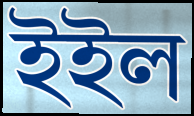
ইইল